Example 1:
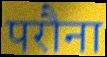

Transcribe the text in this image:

परौना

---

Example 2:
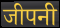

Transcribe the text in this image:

जीपनी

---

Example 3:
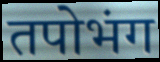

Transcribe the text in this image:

तपोभंग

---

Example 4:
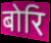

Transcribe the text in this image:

बोरि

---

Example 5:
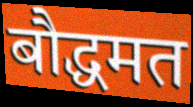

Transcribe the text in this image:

बौद्धमत